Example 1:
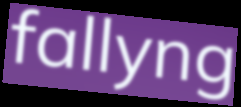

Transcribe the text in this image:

fallyng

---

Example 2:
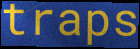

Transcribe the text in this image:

traps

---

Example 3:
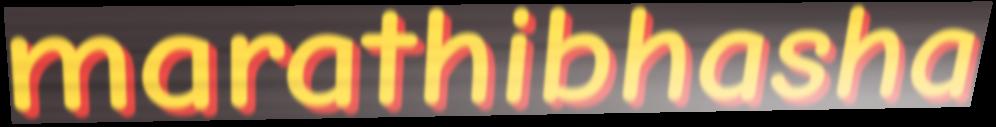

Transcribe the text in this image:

marathibhasha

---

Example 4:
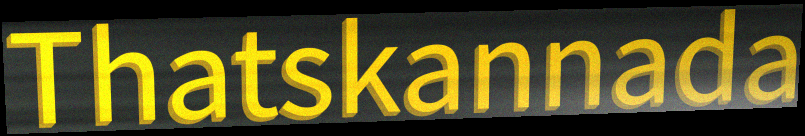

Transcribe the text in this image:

Thatskannada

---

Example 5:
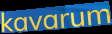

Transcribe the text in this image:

kavarum